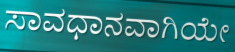
ಸಾವಧಾನವಾಗಿಯೇ